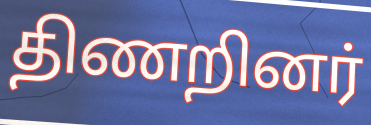
திணறினர்